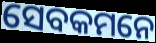
ସେବକମନେ